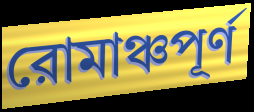
রোমাঞ্চপূর্ণ